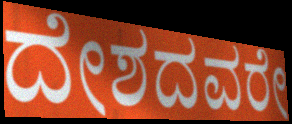
ದೇಶದವರೇ